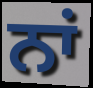
ਨਾਂ